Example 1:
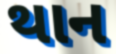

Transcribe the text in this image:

થાન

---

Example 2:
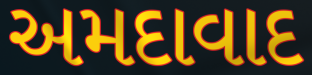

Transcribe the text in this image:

અમદાવાદ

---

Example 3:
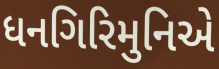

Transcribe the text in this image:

ધનગિરિમુનિએ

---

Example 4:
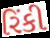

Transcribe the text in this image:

રિંકી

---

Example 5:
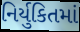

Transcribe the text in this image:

નિર્યુકિતમાં